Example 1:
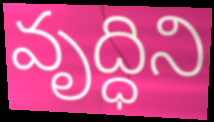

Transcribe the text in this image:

వృద్ధిని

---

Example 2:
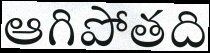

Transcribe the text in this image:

ఆగిపోతది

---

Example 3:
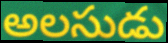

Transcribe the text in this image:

అలసుడు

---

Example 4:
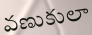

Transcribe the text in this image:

వణుకులా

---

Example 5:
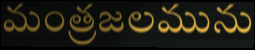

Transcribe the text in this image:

మంత్రజలమును